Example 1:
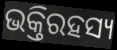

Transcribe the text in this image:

ଭକ୍ତିରହସ୍ୟ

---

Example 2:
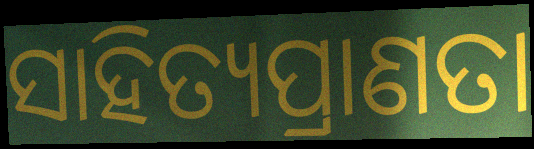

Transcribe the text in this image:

ସାହିତ୍ୟପ୍ରାଣତା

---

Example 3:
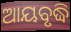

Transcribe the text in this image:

ଆୟବୃଦ୍ଧି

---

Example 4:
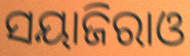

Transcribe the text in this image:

ସୟାଜିରାଓ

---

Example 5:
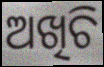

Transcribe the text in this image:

ଅଖିଚି